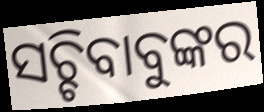
ସଚ୍ଚିବାବୁଙ୍କର